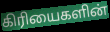
கிரியைகளின்